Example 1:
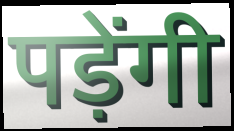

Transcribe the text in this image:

पड़ेंगी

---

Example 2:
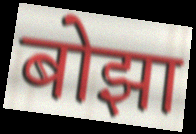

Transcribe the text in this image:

बोझा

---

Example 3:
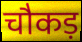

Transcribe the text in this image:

चौकड़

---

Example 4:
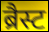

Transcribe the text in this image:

ब्रैस्ट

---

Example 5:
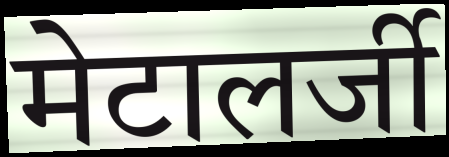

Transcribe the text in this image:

मेटालर्जी